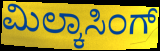
ಮಿಲ್ಕಾಸಿಂಗ್